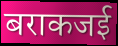
बराकजई